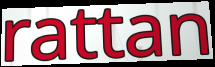
rattan